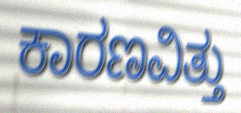
ಕಾರಣವಿತ್ತು